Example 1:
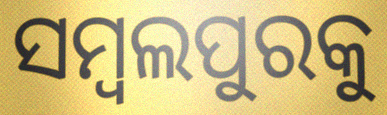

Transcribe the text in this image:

ସମ୍ୱଲପୁରକୁ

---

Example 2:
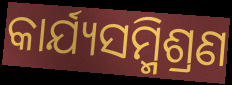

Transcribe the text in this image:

କାର୍ଯ୍ୟସମ୍ମିଶ୍ରଣ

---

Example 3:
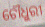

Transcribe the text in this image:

ଚୌଧୁରୀ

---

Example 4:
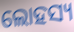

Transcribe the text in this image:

ଲୋହସ୍ୟ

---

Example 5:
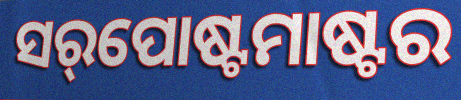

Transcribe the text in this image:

ସର୍‌ପୋଷ୍ଟମାଷ୍ଟର